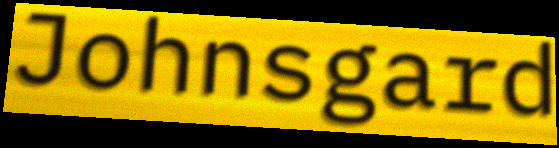
Johnsgard